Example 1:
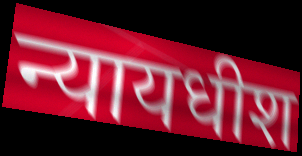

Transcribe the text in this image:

न्यायधीश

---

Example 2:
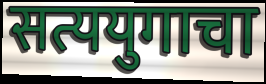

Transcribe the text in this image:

सत्ययुगाचा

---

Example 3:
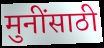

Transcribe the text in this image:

मुनींसाठी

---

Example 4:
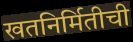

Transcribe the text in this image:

खतनिर्मितीची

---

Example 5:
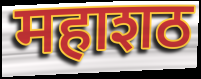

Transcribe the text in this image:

महाशठ